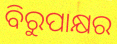
ବିରୁପାକ୍ଷର